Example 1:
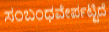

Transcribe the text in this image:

ಸಂಬಂಧವೇರ್ಪಟ್ಟಿದೆ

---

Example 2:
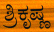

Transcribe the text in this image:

ಶ್ರಿಕೃಷ್ಣ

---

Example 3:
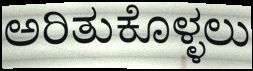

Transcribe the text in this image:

ಅರಿತುಕೊಳ್ಳಲು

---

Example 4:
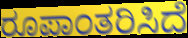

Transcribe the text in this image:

ರೂಪಾಂತರಿಸಿದೆ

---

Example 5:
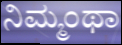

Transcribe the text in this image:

ನಿಮ್ಮಂಥಾ